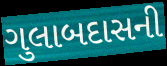
ગુલાબદાસની